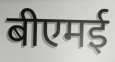
बीएमई